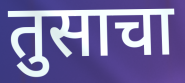
तुसाचा